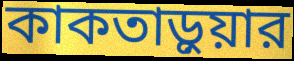
কাকতাড়ুয়ার